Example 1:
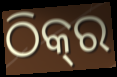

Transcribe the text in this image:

ଠିକ୍‍ର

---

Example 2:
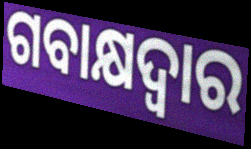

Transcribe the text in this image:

ଗବାକ୍ଷଦ୍ୱାର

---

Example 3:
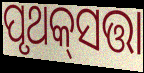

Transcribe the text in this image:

ପୃଥକ୍‌ସତ୍ତା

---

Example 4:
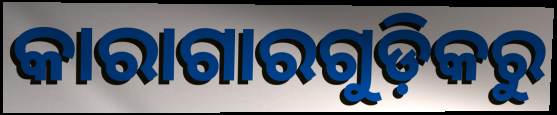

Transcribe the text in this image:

କାରାଗାରଗୁଡ଼ିକରୁ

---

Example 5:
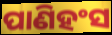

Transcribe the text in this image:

ପାଣିହଂସ